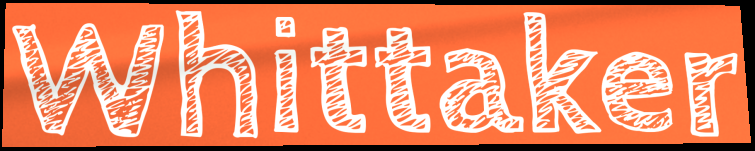
Whittaker